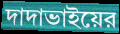
দাদাভাইয়ের